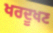
ਖਰਦੂਖਣ